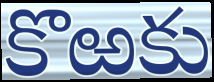
కొఱకు